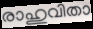
രാഹുവിതാ